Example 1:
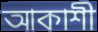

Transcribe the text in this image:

আকাশী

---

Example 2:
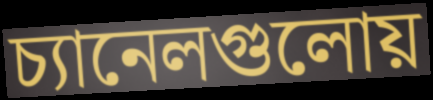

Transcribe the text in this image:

চ্যানেলগুলোয়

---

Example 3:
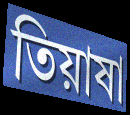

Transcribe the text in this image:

তিয়াষা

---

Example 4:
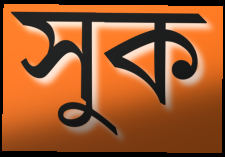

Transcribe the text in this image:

সুক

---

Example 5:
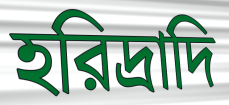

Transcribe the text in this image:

হরিদ্রাদি